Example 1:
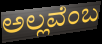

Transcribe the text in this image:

ಅಲ್ಲವೆಂಬ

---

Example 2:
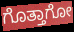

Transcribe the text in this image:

ಗೊತ್ತಾಗೋ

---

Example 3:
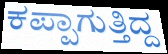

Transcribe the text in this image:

ಕಪ್ಪಾಗುತ್ತಿದ್ದ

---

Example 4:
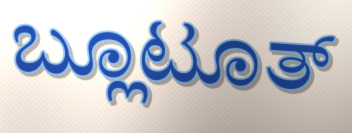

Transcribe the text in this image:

ಬ್ಲೂಟೂತ್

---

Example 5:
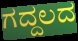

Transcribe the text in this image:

ಗದ್ದಲದ